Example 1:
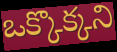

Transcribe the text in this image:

ఒక్కొక్కని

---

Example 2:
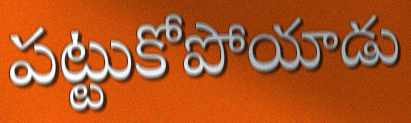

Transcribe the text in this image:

పట్టుకోపోయాడు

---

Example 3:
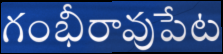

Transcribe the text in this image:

గంభీరావుపేట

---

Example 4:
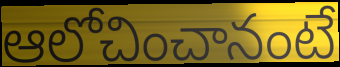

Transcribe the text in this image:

ఆలోచించానంటే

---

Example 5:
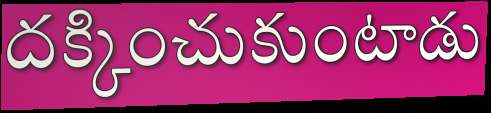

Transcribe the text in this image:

దక్కించుకుంటాడు